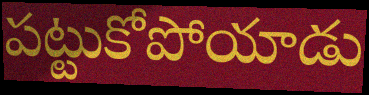
పట్టుకోపోయాడు